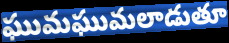
ఘుమఘుమలాడుతూ